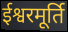
ईश्वरमूर्ति